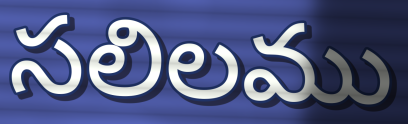
సలిలము